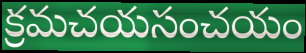
క్రమచయసంచయం